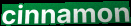
cinnamon